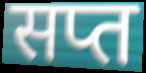
सप्त